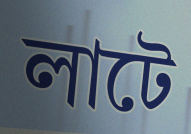
লাটে